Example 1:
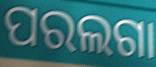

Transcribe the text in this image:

ପରଲଗା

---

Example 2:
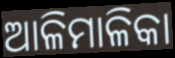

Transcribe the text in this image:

ଆଳିମାଳିକା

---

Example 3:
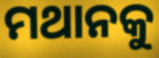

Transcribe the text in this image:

ମଥାନକୁ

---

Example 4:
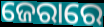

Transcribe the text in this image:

ଜେରାରେ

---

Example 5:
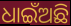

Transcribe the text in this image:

ଧାଇଁଅଛି